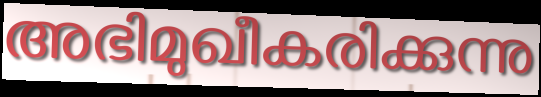
അഭിമുഖീകരിക്കുന്നു